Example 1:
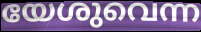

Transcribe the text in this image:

യേശുവെന്ന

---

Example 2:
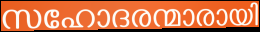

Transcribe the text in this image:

സഹോദരന്മാരായി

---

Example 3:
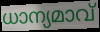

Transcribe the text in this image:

ധാന്യമാവ്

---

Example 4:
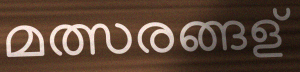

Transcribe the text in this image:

മത്സരങ്ങള്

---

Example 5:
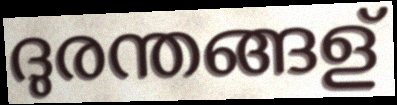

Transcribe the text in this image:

ദുരന്തങ്ങള്